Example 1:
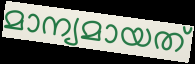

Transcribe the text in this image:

മാന്യമായത്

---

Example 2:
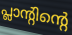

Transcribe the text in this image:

പ്ലാന്റിന്റെ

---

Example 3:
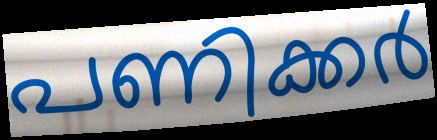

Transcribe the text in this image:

പണിക്കർ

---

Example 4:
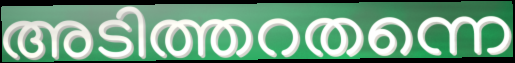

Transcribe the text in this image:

അടിത്തറതന്നെ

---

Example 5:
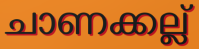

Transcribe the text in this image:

ചാണക്കല്ല്